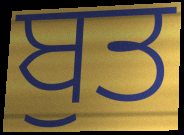
ਬੁਤ